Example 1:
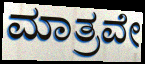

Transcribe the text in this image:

ಮಾತ್ರವೇ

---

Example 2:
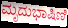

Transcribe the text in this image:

ಮೃದುಭಾಷಿಣಿ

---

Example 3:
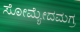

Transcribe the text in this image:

ಸೋಮ್ಯೇದಮಗ್ರ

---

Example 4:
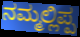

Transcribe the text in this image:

ನಮ್ಮಲ್ಲಿಪ್ಪ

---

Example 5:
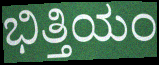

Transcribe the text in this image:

ಭಿತ್ತಿಯಂ